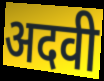
अदवी